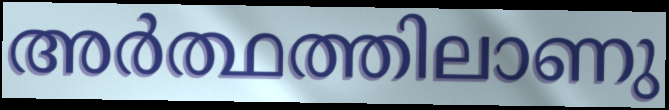
അർത്ഥത്തിലാണു